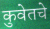
कुवेतचे